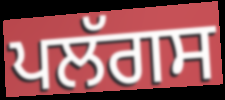
ਪਲੱਗਸ